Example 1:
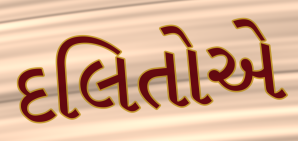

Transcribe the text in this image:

દલિતોએ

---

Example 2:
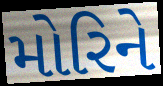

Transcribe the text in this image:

મોરિને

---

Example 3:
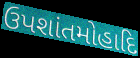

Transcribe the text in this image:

ઉપશાંતમોહાદિ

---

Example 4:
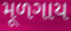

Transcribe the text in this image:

મૂળગાય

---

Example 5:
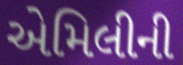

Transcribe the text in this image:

એમિલીની